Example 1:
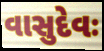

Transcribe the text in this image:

વાસુદેવઃ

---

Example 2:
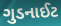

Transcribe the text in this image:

ગુડનાઈટ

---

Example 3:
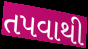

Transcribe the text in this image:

તપવાથી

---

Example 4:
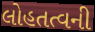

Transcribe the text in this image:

લોહતત્વની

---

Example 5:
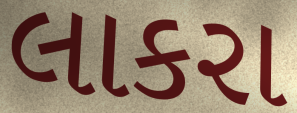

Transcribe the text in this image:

લાકરા